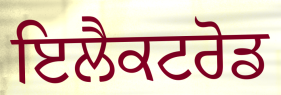
ਇਲੈਕਟਰੋਡ